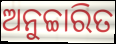
ଅନୁଚ୍ଚାରିତ